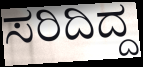
ಸರಿದಿದ್ದ